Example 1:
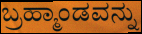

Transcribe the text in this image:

ಬ್ರಹ್ಮಾಂಡವನ್ನು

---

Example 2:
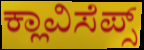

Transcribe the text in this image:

ಕ್ಲಾವಿಸೆಪ್ಸ್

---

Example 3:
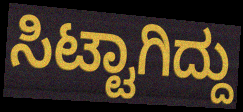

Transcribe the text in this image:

ಸಿಟ್ಟಾಗಿದ್ದು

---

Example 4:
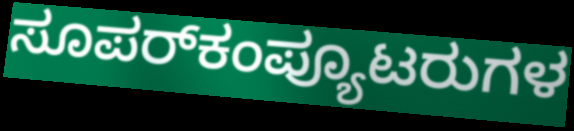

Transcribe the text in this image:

ಸೂಪರ್‌ಕಂಪ್ಯೂಟರುಗಳ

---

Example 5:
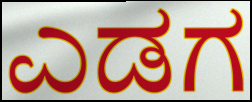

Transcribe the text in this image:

ಎಡಗ